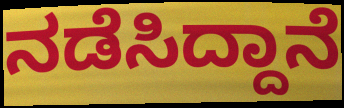
ನಡೆಸಿದ್ದಾನೆ